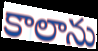
కాలాను